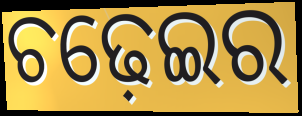
ଚଢ଼େଇର